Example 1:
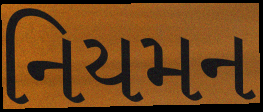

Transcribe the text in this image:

નિયમન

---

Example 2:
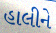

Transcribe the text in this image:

હાલીને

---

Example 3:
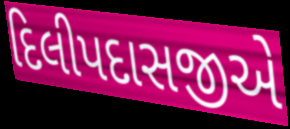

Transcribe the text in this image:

દિલીપદાસજીએ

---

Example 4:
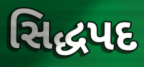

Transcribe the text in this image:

સિદ્ધપદ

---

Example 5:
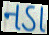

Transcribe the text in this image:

નડા